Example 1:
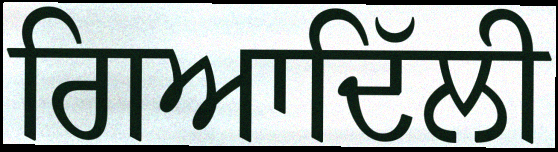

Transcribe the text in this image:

ਗਿਆਦਿੱਲੀ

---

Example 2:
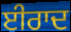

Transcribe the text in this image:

ਈਰਾਦ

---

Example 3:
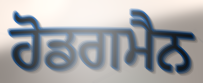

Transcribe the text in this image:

ਹੋਡਗਮੈਨ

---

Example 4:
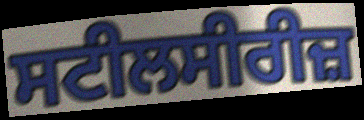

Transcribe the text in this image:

ਸਟੀਲਸੀਰੀਜ਼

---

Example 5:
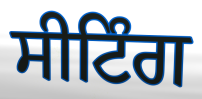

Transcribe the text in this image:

ਸੀਟਿੰਗ